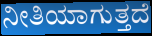
ನೀತಿಯಾಗುತ್ತದೆ